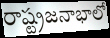
రాష్ట్రజనాభాలో